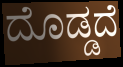
ದೊಡ್ಡದೆ